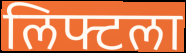
लिफ्टला